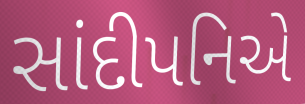
સાંદીપનિએ